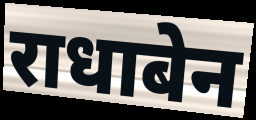
राधाबेन